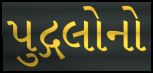
પુદ્ગલોનો